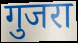
गुजरा